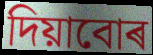
দিয়াবোৰ